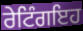
ਰੇਟਿੰਗਇਹ